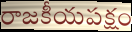
రాజకీయపక్షం